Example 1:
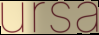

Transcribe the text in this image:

ursa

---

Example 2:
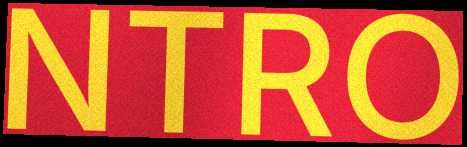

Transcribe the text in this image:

NTRO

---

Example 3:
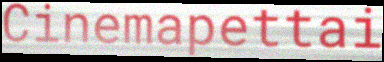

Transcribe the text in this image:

Cinemapettai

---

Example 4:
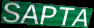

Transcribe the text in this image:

SAPTA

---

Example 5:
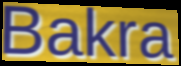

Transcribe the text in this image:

Bakra